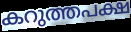
കറുത്തപക്ഷ